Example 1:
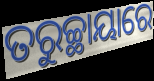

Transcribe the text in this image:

ତରୁଚ୍ଛାୟାରେ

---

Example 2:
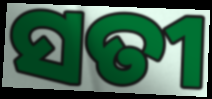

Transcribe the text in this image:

ସତୀ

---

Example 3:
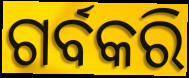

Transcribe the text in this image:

ଗର୍ବକରି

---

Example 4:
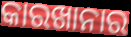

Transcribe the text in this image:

କାରଖାନାର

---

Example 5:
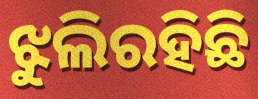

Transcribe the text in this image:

ଝୁଲିରହିଛି